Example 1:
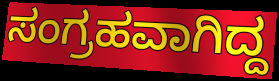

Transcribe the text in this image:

ಸಂಗ್ರಹವಾಗಿದ್ದ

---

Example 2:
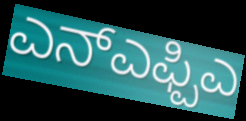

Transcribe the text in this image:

ಎನ್ಎಫ್ಪಿಎ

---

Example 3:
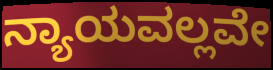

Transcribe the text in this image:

ನ್ಯಾಯವಲ್ಲವೇ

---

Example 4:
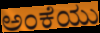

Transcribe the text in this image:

ಅಂಕೆಯು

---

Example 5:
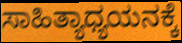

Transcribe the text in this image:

ಸಾಹಿತ್ಯಾಧ್ಯಯನಕ್ಕೆ